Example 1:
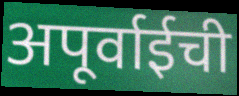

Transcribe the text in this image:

अपूर्वाईची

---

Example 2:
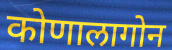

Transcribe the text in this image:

कोणालागोन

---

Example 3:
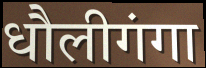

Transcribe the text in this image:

धौलीगंगा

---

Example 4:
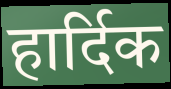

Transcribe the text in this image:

हार्दिक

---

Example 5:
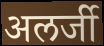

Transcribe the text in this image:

अलर्जी